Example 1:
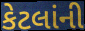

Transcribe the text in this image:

કેટલાંની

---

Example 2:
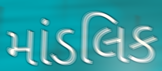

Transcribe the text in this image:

માંડલિક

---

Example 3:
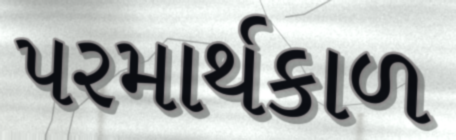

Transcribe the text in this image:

પરમાર્થકાળ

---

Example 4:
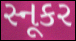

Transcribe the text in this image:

સ્નૂકર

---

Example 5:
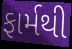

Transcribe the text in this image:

ફાર્મથી